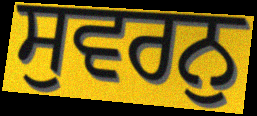
ਸੁਵਰਨੁ